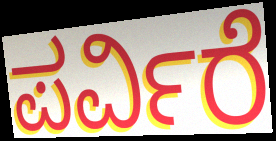
ಪರ್ವಿರೆ